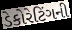
ડેકોરેટિંગની